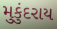
મુકુંદરાય